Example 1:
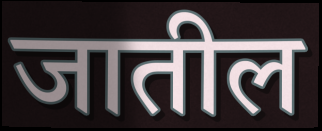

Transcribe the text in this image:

जातील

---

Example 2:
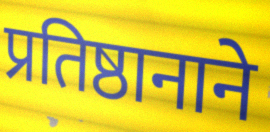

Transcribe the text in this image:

प्रतिष्ठानाने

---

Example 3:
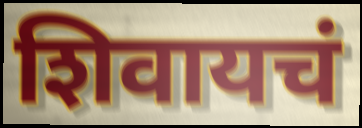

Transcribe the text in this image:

शिवायचं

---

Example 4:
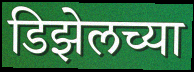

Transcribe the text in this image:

डिझेलच्या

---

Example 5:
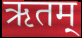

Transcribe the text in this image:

ऋतम्